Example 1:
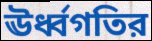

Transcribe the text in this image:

ঊর্ধ্বগতির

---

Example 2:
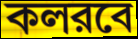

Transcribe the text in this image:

কলরবে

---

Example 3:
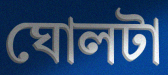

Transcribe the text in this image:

ঘোলটা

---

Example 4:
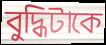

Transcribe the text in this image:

বুদ্ধিটাকে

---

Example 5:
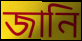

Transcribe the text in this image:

জানি